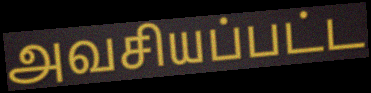
அவசியப்பட்ட